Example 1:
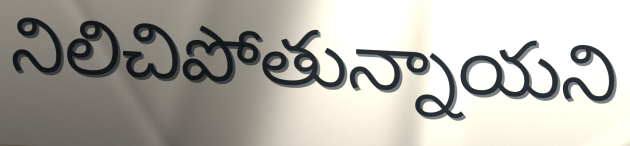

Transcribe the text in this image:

నిలిచిపోతున్నాయని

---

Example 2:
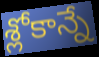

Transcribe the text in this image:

శ్లోకాన్నే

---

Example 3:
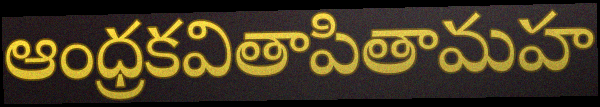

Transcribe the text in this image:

ఆంధ్రకవితాపితామహ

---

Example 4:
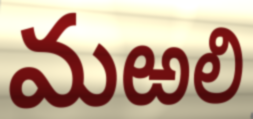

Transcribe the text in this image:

మఱలి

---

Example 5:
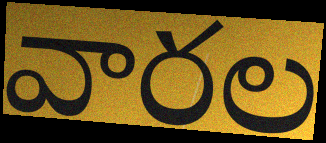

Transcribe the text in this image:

వారల